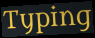
Typing